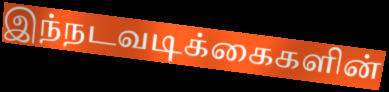
இந்நடவடிக்கைகளின்